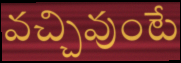
వచ్చివుంటే